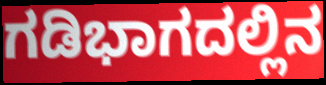
ಗಡಿಭಾಗದಲ್ಲಿನ